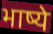
भाष्ये